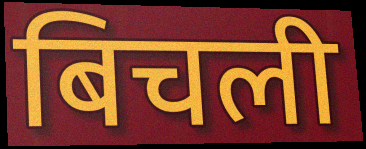
बिचली